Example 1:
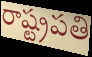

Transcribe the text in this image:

రాష్ట్రపతి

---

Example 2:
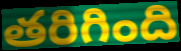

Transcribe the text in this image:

తరిగింది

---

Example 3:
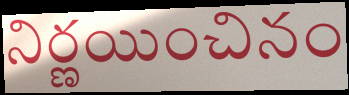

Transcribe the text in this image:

నిర్ణయించినం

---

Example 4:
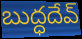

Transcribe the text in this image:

బుద్ధదేవ్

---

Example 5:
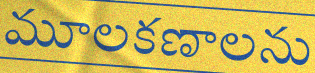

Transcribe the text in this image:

మూలకణాలను